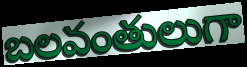
బలవంతులుగా